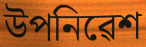
উপনিৱেশ